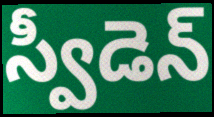
స్వీడెన్